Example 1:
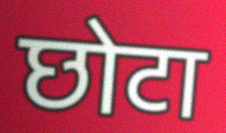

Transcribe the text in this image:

छोटा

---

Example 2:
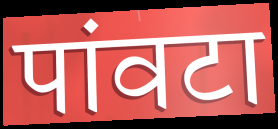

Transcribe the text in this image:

पांवटा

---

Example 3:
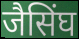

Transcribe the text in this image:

जैसिंघ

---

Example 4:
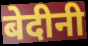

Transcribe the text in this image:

बेदीनी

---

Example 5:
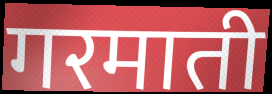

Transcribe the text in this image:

गरमाती